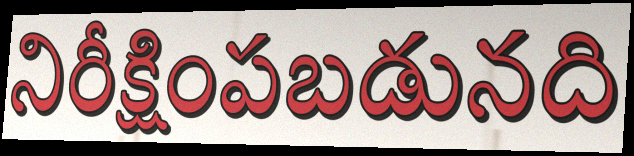
నిరీక్షింపబడునది